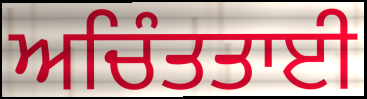
ਅਚਿੰਤਤਾਈ